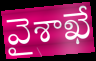
వైశాఖే